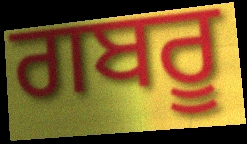
ਗਬਰੂ